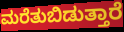
ಮರೆತುಬಿಡುತ್ತಾರೆ